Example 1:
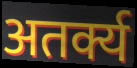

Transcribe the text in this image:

अतर्क्य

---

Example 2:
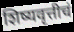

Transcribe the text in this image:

शिष्यवृत्तीचं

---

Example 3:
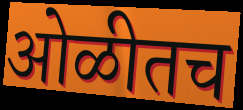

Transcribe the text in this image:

ओळीतच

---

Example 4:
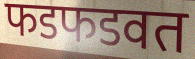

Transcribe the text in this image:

फडफडवत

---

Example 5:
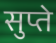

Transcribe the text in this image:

सुप्ते